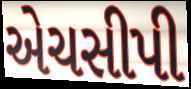
એચસીપી